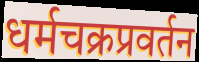
धर्मचक्रप्रवर्तन